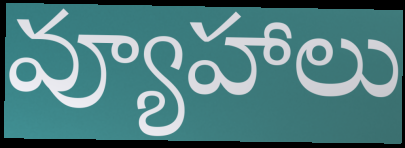
వ్యూహాలు